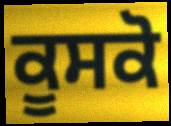
ਕੂਸਕੋ